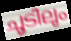
ചൂടിലും